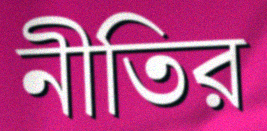
নীতির